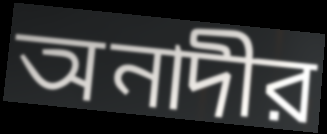
অনাদীর